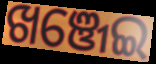
ଖଞ୍ଜେଇ